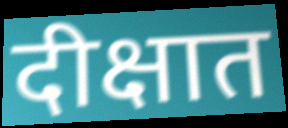
दीक्षात